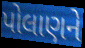
પોલાણને